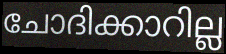
ചോദിക്കാറില്ല